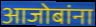
आजोबांना